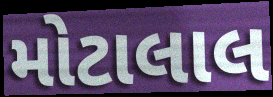
મોટાલાલ